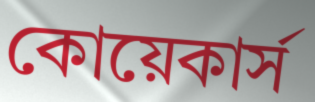
কোয়েকার্স